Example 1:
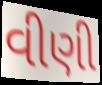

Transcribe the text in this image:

વીણી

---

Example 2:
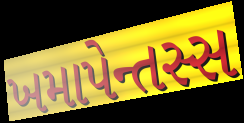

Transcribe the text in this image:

ખમાપેન્તસ્સ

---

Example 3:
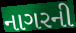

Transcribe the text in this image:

નાગરની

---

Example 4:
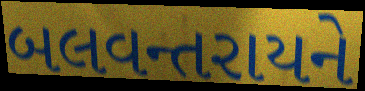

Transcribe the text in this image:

બલવન્તરાયને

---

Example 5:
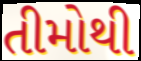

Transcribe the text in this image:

તીમોથી